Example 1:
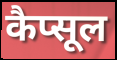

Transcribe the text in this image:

कैप्सूल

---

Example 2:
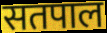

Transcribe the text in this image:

सतपाल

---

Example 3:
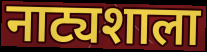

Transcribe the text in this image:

नाट्यशाला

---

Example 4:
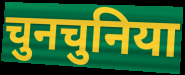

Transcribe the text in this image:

चुनचुनिया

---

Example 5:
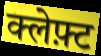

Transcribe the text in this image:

क्लेफ़्ट